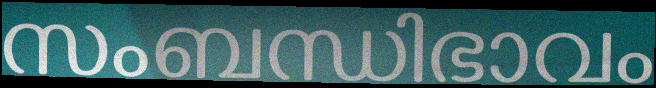
സംബന്ധിഭാവം